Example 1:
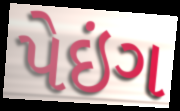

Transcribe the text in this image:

પેઇંગ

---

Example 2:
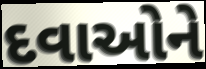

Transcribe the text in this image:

દવાઓને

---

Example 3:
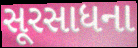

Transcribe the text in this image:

સૂરસાધના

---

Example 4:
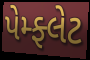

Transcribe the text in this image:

પેમ્ફ્લેટ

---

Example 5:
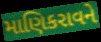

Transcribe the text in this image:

માણિકરાવને